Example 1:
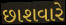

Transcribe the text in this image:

છાશવારે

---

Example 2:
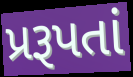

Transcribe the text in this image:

પ્રરૂપતાં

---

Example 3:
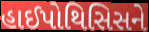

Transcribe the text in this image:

હાઈપોથિસિસને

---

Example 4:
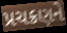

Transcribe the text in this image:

પ્રચક્રણને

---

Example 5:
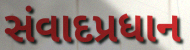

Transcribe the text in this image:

સંવાદપ્રધાન